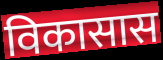
विकासास